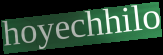
hoyechhilo